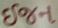
ઈજન